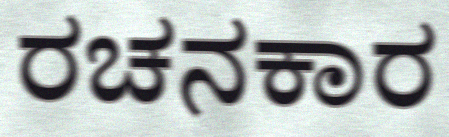
ರಚನಕಾರ